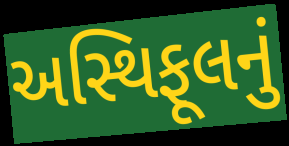
અસ્થિફૂલનું